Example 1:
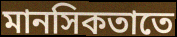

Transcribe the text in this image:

মানসিকতাতে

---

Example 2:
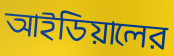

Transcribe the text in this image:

আইডিয়ালের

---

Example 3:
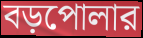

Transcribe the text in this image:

বড়পোলার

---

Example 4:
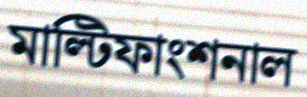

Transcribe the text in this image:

মাল্টিফাংশনাল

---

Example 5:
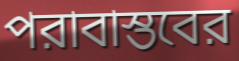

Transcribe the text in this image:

পরাবাস্তবের